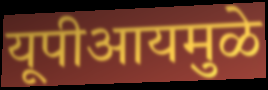
यूपीआयमुळे